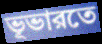
ভূভারতে